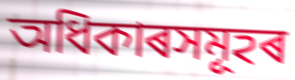
অধিকাৰসমূহৰ